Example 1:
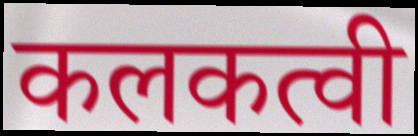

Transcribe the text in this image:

कलकत्वी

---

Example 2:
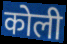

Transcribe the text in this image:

कोली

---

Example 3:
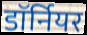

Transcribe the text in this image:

डॉर्नियर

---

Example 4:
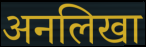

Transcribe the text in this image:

अनलिखा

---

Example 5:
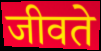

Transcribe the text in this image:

जीवते